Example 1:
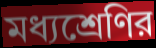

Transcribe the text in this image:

মধ্যশ্রেণির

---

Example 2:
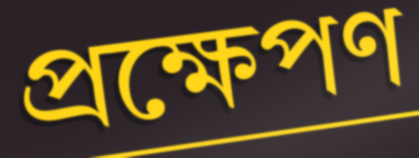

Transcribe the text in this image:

প্রক্ষেপণ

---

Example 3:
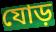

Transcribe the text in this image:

যোড়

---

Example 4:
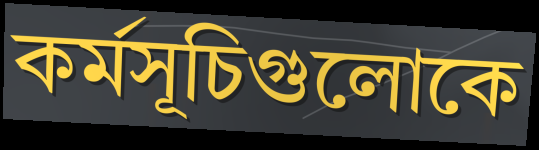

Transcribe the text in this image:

কর্মসূচিগুলোকে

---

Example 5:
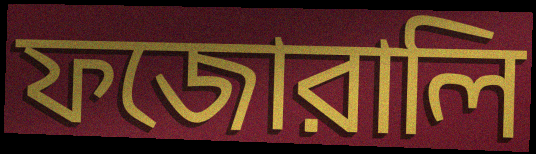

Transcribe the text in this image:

ফজোরালি